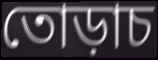
তোড়াচ